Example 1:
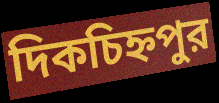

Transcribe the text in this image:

দিকচিহ্নপুর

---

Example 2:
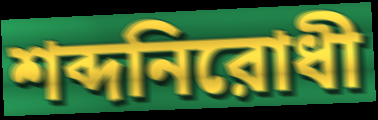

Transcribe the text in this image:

শব্দনিরোধী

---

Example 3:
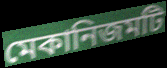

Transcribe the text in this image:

মেকানিজমটি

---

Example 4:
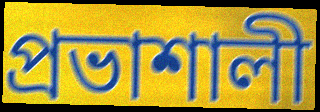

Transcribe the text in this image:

প্রভাশালী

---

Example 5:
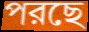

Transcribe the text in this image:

পরছে